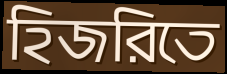
হিজরিতে